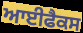
ਆਈਫੈਕਸ